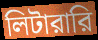
লিটারারি